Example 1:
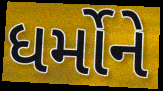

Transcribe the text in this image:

ધર્મોને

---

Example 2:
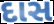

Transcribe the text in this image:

દાસ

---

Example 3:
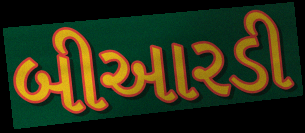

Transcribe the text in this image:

બીઆરડી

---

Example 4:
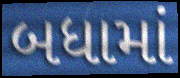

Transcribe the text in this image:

બધામાં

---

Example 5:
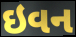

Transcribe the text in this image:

ઇવન